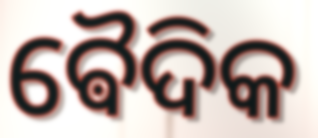
ଵୈଦିକ